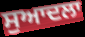
ਸੁਆਦਲਾ